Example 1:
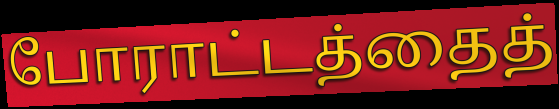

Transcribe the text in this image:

போராட்டத்தைத்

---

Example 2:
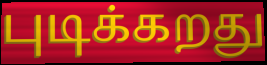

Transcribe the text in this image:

புடிக்கறது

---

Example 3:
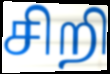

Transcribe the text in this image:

சிறி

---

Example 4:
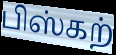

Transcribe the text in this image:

பிஸ்கற்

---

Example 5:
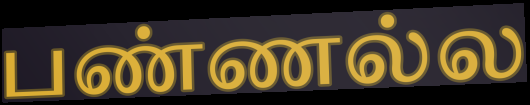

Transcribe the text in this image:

பண்ணல்ல